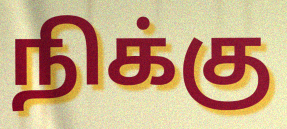
நிக்கு